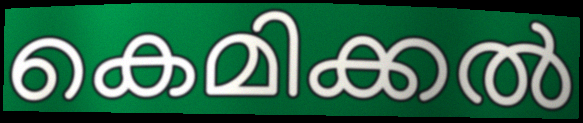
കെമിക്കൽ